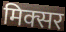
मिक्‍सर